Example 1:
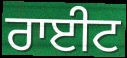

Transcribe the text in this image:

ਰਾਈਟ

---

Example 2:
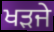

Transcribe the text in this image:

ਖੜਜੇ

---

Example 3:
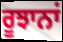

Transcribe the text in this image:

ਰੂਝਾਨਾਂ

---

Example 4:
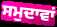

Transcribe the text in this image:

ਸਮੁਦਾਵਾਂ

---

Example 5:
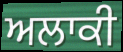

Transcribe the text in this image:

ਅਲਾਕੀ